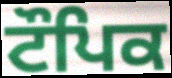
ਟੌਪਿਕ